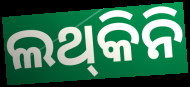
ଲଥ୍‌କିନି